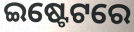
ଇଷ୍ଟେଟରେ